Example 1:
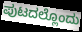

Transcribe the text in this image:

ಪುಟದಲ್ಲೊಂದು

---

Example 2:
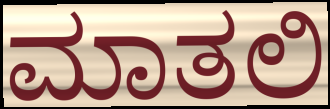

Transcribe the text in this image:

ಮಾತಲಿ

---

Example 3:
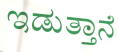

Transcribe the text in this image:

ಇಡುತ್ತಾನೆ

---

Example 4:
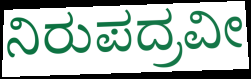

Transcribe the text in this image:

ನಿರುಪದ್ರವೀ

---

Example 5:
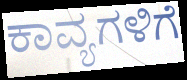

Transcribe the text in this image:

ಕಾವ್ಯಗಳಿಗೆ